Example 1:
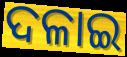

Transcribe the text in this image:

ଦଳାଇ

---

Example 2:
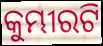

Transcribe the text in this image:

କୁମ୍ଭୀରଟି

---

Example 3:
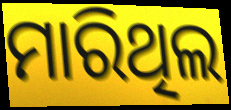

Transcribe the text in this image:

ମାରିଥିଲ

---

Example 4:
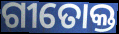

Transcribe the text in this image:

ଗୀତୋକ୍ତ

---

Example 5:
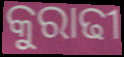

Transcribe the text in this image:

କୁରାଢୀ